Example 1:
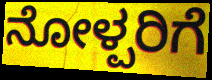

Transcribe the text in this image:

ನೋಳ್ಪರಿಗೆ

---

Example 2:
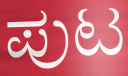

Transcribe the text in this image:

ಪುಟ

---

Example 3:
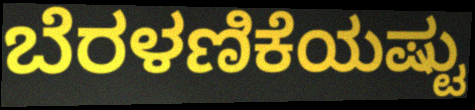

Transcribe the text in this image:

ಬೆರಳಣಿಕೆಯಷ್ಟು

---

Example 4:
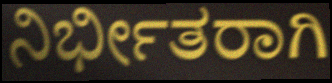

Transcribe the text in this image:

ನಿರ್ಭೀತರಾಗಿ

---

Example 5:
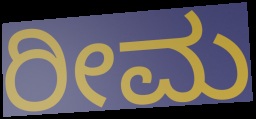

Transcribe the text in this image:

ರೀಮ